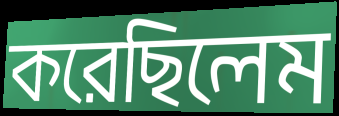
করেছিলেম